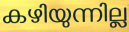
കഴിയുന്നില്ല